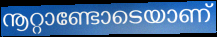
നൂറ്റാണ്ടോടെയാണ്